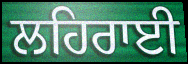
ਲਹਿਰਾਈ